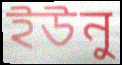
ইউনু